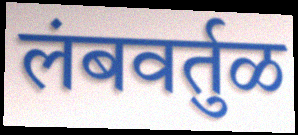
लंबवर्तुळ